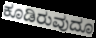
ಕೂಡಿರುವುದೂ